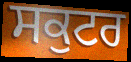
ਸਕੁਟਰ